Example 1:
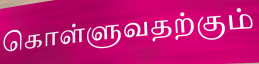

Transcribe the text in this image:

கொள்ளுவதற்கும்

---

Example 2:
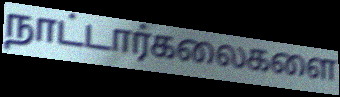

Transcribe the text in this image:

நாட்டார்கலைகளை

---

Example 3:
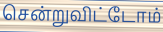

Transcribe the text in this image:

சென்றுவிட்டோம்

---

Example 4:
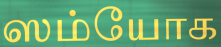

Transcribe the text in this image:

ஸம்யோக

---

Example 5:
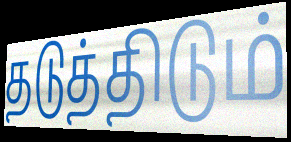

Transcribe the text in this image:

தடுத்திடும்